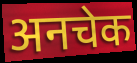
अनचेक